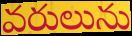
వరులును